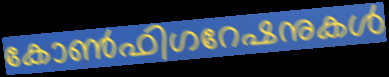
കോൺഫിഗറേഷനുകൾ